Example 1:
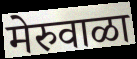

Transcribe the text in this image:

मेरुवाळा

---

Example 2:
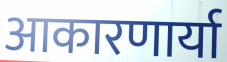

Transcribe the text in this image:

आकारणार्या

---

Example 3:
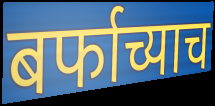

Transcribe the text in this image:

बर्फाच्याच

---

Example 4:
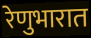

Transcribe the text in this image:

रेणुभारात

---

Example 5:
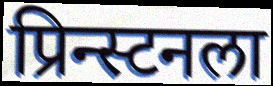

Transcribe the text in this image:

प्रिन्स्टनला